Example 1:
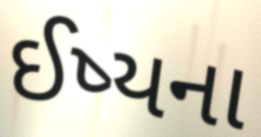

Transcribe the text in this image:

ઈષ્યના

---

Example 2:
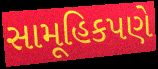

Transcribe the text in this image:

સામૂહિકપણે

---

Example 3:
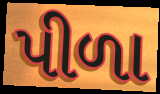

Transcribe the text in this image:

પીળા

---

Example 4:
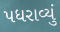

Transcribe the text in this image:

પધરાવ્યું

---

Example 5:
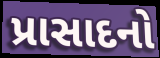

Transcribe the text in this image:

પ્રાસાદનો